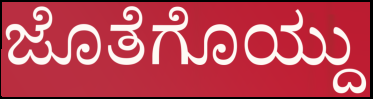
ಜೊತೆಗೊಯ್ದು